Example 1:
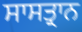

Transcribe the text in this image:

ਸਾਸਤ੍ਰਾਨ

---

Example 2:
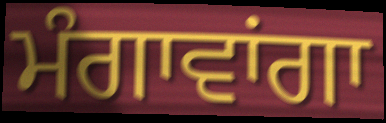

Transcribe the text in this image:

ਮੰਗਾਵਾਂਗਾ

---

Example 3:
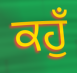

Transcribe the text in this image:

ਕਹੁਁ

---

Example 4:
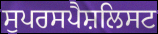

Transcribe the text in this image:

ਸੁਪਰਸਪੈਸ਼ਲਿਸਟ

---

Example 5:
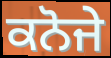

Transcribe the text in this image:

ਕਨੋਜੇ